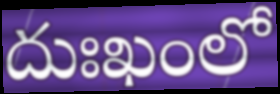
దుఃఖంలో